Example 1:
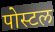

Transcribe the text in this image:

पोस्टल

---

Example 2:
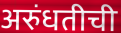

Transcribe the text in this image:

अरुंधतीची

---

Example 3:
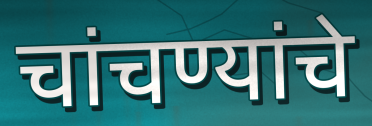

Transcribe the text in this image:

चांचण्यांचे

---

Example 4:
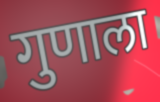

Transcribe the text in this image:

गुणाला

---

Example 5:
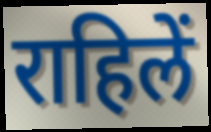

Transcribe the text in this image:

राहिलें